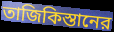
তাজিকিস্তানের